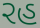
રહ